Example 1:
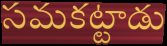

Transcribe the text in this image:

సమకట్టాడు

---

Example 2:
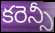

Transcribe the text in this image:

కరెన్సీ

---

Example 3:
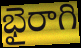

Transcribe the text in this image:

భైరాగి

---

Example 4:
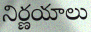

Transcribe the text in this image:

నిర్ణయాలు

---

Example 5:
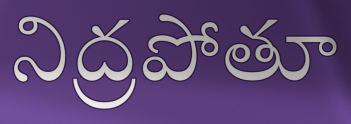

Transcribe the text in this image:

నిద్రపోతూ